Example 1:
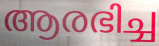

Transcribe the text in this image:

ആരഭിച്ച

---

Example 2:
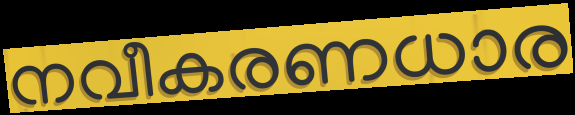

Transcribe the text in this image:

നവീകരണധാര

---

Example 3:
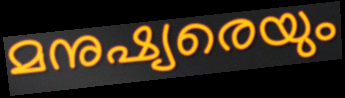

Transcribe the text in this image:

മനുഷ്യരെയും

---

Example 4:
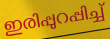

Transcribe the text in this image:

ഇരിപ്പുറപ്പിച്ച്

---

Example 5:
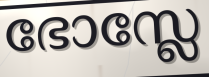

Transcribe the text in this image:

ഭോസ്ലേ